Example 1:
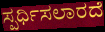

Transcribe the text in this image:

ಸ್ಪರ್ಧಿಸಲಾರದೆ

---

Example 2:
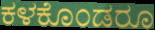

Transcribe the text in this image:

ಕಳಕೊಂಡರೂ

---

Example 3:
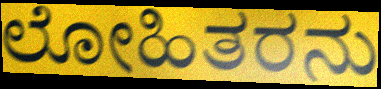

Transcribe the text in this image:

ಲೋಹಿತರನು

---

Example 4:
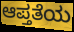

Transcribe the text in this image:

ಆಪ್ತತೆಯ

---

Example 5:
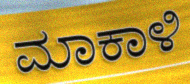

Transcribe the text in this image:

ಮಾಕಾಳಿ